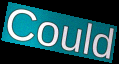
Could